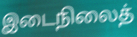
இடைநிலைத்